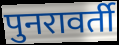
पुनरावर्ती